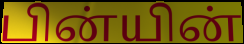
பின்யின்